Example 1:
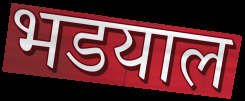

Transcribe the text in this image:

भडयाल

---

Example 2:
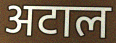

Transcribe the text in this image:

अटाल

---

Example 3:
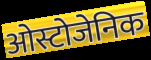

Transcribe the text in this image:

ओस्टोजेनिक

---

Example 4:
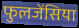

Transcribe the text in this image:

फुलजेंसिया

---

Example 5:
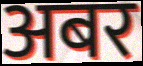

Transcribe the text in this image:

अबर